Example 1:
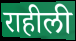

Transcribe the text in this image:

राहीली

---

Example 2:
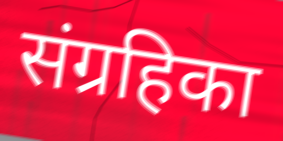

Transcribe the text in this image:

संग्रहिका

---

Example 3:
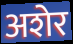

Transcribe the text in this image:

अशेर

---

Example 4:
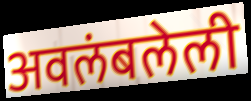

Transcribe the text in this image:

अवलंबलेली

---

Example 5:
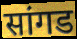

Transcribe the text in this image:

सांगड